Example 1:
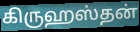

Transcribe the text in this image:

கிருஹஸ்தன்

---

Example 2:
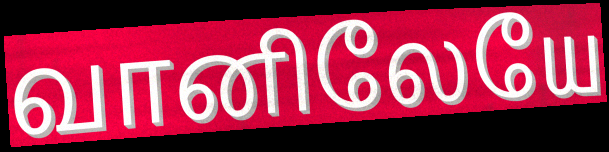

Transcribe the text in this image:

வானிலேயே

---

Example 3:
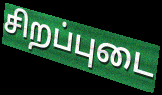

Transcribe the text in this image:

சிறப்புடை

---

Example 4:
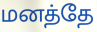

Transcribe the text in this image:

மனத்தே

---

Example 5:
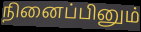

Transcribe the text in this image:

நினைப்பினும்